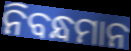
ନିବନ୍ଧମାନ